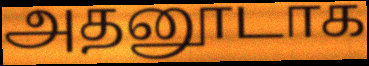
அதனூடாக